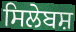
ਸਿਲੇਬਸ਼